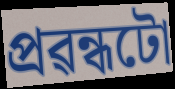
প্ৰৱন্ধটো